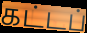
கட்டப்